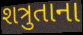
શત્રુતાના